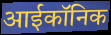
आईकॉनिक